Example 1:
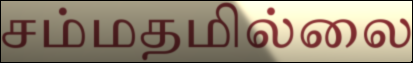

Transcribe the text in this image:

சம்மதமில்லை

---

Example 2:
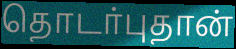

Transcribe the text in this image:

தொடர்புதான்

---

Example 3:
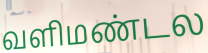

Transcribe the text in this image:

வளிமண்டல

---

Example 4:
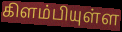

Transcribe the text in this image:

கிளம்பியுள்ள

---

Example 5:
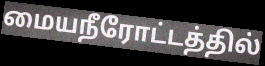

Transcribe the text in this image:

மையநீரோட்டத்தில்